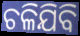
ଚଳିଯିବି